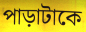
পাড়াটাকে